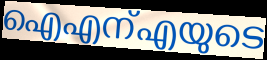
ഐഎന്എയുടെ